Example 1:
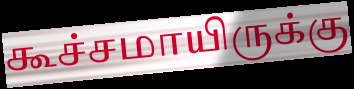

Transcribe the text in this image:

கூச்சமாயிருக்கு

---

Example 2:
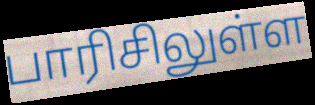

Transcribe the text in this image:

பாரிசிலுள்ள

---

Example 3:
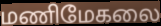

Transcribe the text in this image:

மணிமேகலை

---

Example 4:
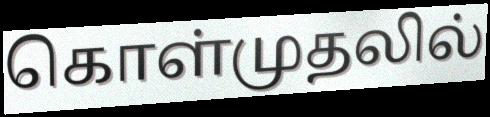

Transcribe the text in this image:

கொள்முதலில்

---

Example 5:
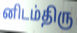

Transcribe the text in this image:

னிடம்திரு